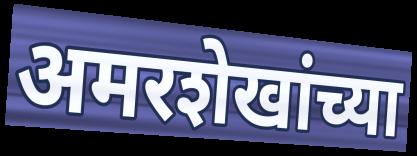
अमरशेखांच्या